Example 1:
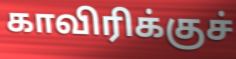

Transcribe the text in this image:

காவிரிக்குச்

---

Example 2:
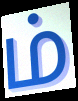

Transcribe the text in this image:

ம்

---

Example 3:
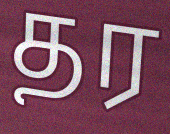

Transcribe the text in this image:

தர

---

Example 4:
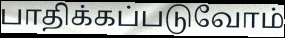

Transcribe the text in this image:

பாதிக்கப்படுவோம்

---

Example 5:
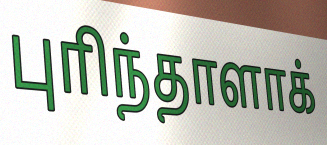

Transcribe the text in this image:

புரிந்தாளாக்